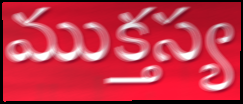
ముక్తస్య